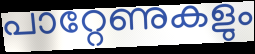
പാറ്റേണുകളും